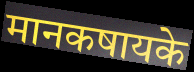
मानकषायके